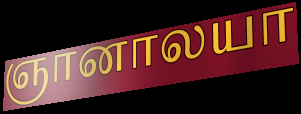
ஞானாலயா